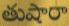
తుషారా